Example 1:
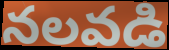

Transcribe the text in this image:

నలవడి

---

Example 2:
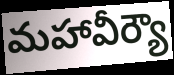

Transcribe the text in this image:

మహావీర్యౌ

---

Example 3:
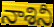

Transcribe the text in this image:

నాశినీ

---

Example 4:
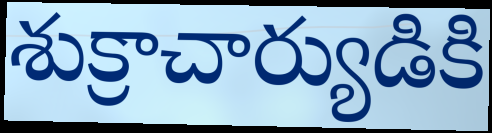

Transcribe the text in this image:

శుక్రాచార్యుడికి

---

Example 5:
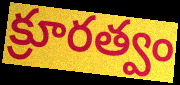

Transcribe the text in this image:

క్రూరత్వం